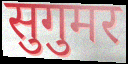
सुगुमर